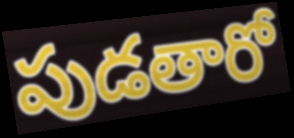
పుడతారో